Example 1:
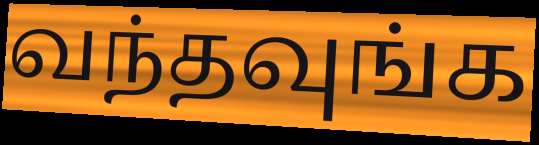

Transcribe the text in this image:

வந்தவுங்க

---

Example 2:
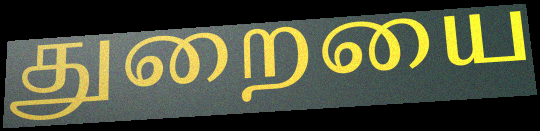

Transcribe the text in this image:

துறையை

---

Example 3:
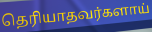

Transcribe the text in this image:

தெரியாதவர்களாய்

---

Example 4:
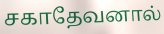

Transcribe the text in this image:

சகாதேவனால்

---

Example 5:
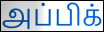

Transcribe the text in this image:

அப்பிக்